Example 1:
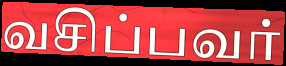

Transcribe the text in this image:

வசிப்பவர்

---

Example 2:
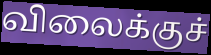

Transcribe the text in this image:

விலைக்குச்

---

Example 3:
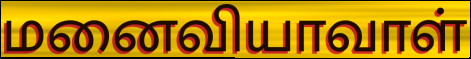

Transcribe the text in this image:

மனைவியாவாள்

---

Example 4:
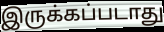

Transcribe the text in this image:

இருக்கப்படாது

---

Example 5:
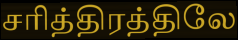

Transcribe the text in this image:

சரித்திரத்திலே